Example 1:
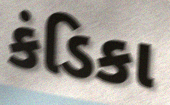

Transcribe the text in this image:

કંડિકા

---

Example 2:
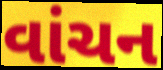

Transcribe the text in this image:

વાંચન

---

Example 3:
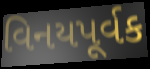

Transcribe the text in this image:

વિનયપૂર્વક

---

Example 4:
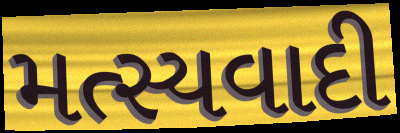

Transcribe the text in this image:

મત્સ્યવાદી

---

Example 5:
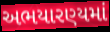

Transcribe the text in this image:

અભયારણ્યમાં